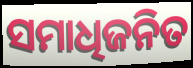
ସମାଧିଜନିତ